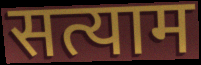
सत्याम